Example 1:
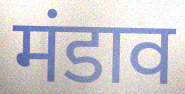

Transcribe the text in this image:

मंडाव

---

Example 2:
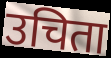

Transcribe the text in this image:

उचिता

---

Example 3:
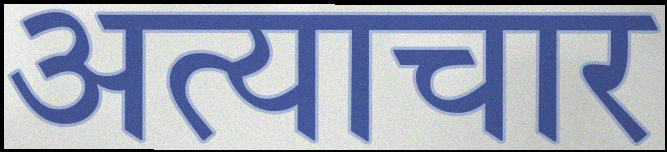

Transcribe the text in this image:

अत्याचार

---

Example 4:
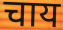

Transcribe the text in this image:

चाय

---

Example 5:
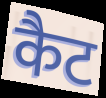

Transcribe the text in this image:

कैट